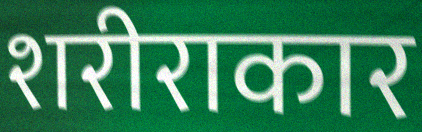
शरीराकार